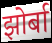
झोर्बा